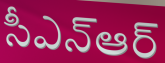
సీఎన్ఆర్